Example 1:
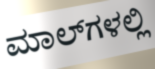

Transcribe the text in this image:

ಮಾಲ್‌ಗಳಲ್ಲಿ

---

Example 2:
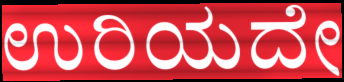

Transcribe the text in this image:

ಉರಿಯದೇ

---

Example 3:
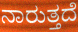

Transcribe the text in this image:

ನಾರುತ್ತದೆ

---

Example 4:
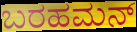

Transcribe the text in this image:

ಬರಹಮನ್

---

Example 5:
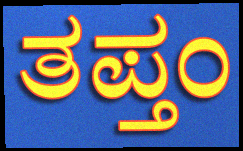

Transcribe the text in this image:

ತಪ್ತಂ